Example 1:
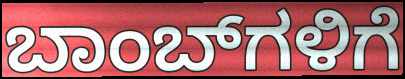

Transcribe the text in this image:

ಬಾಂಬ್‌ಗಳಿಗೆ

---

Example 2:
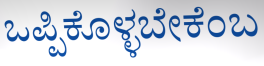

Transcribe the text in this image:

ಒಪ್ಪಿಕೊಳ್ಳಬೇಕೆಂಬ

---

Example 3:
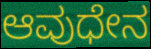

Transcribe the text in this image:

ಆವುಧೇನ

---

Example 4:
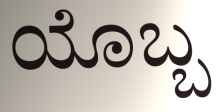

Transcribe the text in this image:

ಯೊಬ್ಬ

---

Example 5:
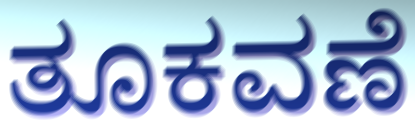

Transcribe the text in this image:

ತೂಕವಣೆ